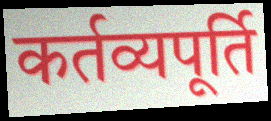
कर्तव्यपूर्ति